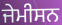
ਜੇਮੀਸਨ